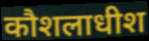
कौशलाधीश